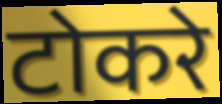
टोकरे